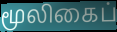
மூலிகைப்